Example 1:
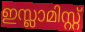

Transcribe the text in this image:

ഇസ്ലാമിസ്റ്റ്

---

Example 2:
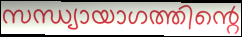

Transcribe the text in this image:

സന്ധ്യായാഗത്തിന്റെ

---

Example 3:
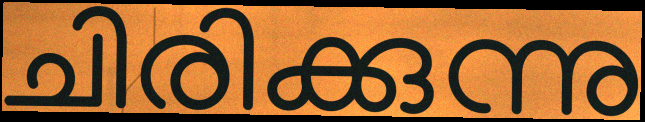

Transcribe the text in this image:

ചിരിക്കുന്നു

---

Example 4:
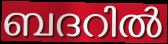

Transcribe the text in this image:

ബദറിൽ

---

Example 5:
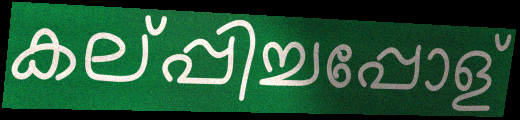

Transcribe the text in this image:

കല്പ്പിച്ചപ്പോള്